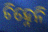
ଚିହ୍ନେନି